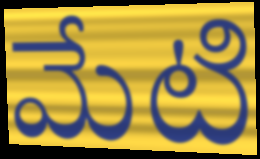
మేటి